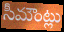
సీమౌంట్లు